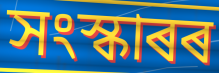
সংস্কাৰৰ